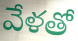
వేళతో